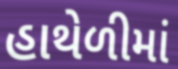
હાથેળીમાં